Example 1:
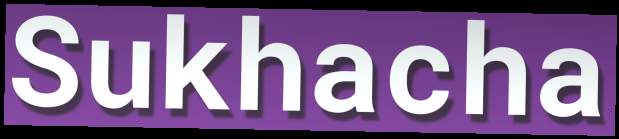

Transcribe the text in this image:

Sukhacha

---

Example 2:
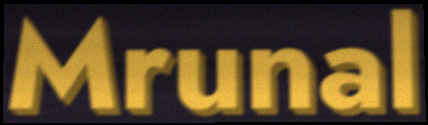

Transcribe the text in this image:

Mrunal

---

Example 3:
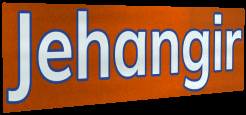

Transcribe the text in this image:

Jehangir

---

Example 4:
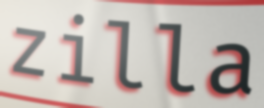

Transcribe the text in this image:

zilla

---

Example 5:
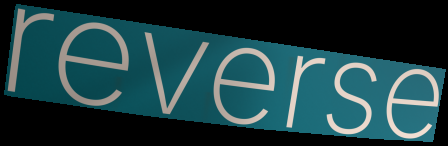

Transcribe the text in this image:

reverse